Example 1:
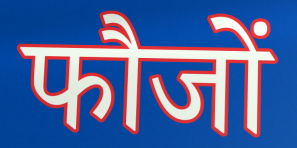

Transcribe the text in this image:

फौजों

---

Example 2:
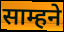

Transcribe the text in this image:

साम्हने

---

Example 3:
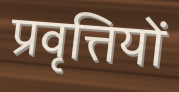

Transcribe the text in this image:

प्रवृत्तियों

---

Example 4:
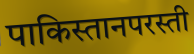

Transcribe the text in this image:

पाकिस्तानपरस्ती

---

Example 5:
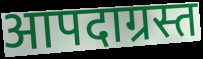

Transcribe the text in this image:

आपदाग्रस्त